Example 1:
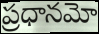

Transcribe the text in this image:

ప్రధానమో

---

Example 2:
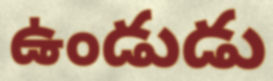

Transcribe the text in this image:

ఉండుడు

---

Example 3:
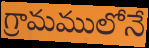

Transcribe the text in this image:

గ్రామములోనే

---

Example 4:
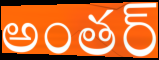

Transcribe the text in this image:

అంతర్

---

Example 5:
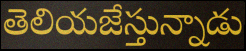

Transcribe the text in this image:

తెలియజేస్తున్నాడు